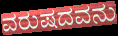
ವರುಷದವನು